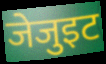
जेजुइट